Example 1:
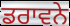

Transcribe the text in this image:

ਡਰਾਵਨੇ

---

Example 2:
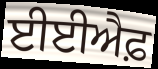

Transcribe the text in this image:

ਈਈਐਫ਼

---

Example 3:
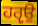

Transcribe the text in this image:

ਹਰੵਉ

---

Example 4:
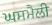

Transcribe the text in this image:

ਘਸਮੈਲੀ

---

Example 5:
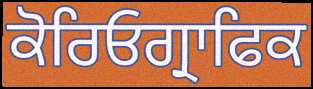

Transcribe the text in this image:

ਕੋਰਿਓਗ੍ਰਾਫਿਕ